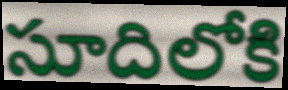
సూదిలోకి